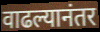
वाढल्यानंतर